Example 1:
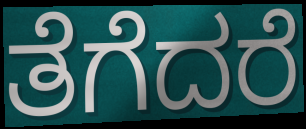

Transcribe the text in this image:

ತೆಗೆದರೆ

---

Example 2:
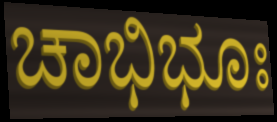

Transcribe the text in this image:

ಚಾಭಿಭೂಃ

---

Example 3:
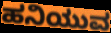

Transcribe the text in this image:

ಹನಿಯುವ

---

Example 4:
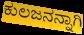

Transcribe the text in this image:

ಕುಲಜನನ್ನಾಗಿ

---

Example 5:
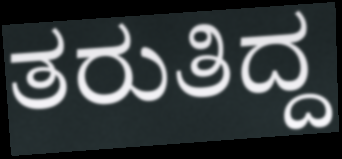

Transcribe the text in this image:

ತರುತಿದ್ದ